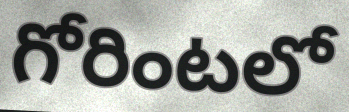
గోరింటలో